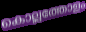
കൊല്ലത്തോളം